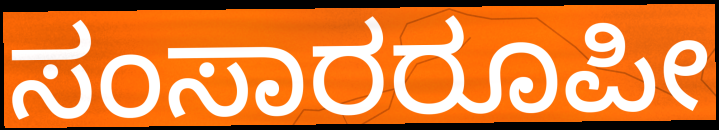
ಸಂಸಾರರೂಪೀ